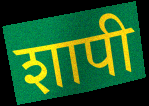
शापी